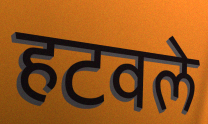
हटवले